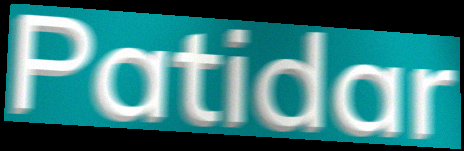
Patidar